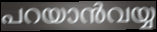
പറയാൻവയ്യ